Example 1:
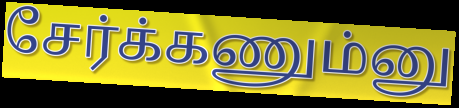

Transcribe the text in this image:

சேர்க்கணும்னு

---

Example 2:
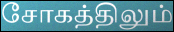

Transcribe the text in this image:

சோகத்திலும்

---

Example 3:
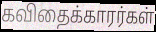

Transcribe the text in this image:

கவிதைக்காரர்கள்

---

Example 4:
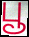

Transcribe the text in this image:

பூ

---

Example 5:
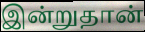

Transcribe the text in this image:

இன்றுதான்